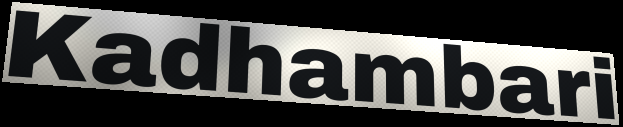
Kadhambari